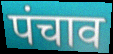
पंचाव